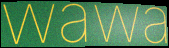
wawa